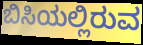
ಬಿಸಿಯಲ್ಲಿರುವ